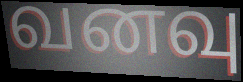
வனவு